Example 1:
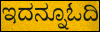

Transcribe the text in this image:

ಇದನ್ನೂಓದಿ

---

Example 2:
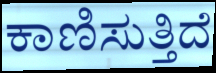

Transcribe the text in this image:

ಕಾಣಿಸುತ್ತಿದೆ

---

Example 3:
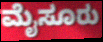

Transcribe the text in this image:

ಮೈಸೂರು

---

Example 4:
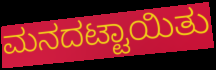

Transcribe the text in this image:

ಮನದಟ್ಟಾಯಿತು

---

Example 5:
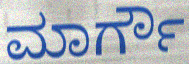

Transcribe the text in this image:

ಮಾರ್ಗೌ